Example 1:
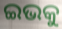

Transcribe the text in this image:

ଇଭକୁ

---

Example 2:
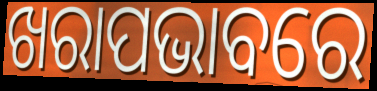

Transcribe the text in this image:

ଖରାପଭାବରେ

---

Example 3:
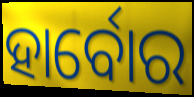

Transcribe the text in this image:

ହାର୍ବୋର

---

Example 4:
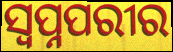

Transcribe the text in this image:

ସ୍ୱପ୍ନପରୀର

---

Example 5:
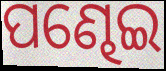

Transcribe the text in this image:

ପଣ୍ଢେଇ